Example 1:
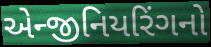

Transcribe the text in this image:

એન્જીનિયરિંગનો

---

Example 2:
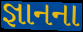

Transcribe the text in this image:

જ્ઞાનના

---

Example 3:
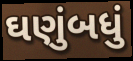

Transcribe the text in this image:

ઘણુંબધું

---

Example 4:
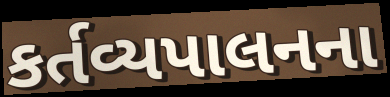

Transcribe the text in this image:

કર્તવ્યપાલનના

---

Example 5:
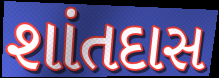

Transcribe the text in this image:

શાંતદાસ